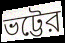
ভট্টের